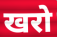
खरो